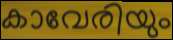
കാവേരിയും